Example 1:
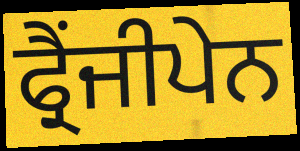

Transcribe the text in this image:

ਫ੍ਰੈਂਜੀਪੇਨ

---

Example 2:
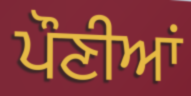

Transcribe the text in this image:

ਪੌਣੀਆਂ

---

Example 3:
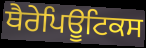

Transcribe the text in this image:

ਥੈਰੇਪਿਊਟਿਕਸ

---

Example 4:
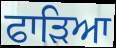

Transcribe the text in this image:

ਫਾੜਿਆ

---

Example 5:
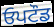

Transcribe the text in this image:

ਓਪਟੌਡ